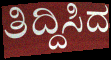
ತಿದ್ದಿಸಿದ